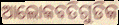
ଆଲୋକବତିଗୁଡିକ